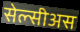
सेल्सीअस